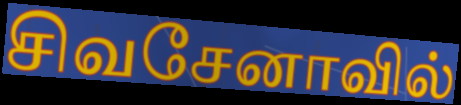
சிவசேனாவில்